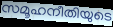
സമൂഹനീതിയുടെ